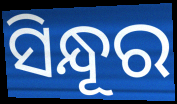
ସିନ୍ଧୂର